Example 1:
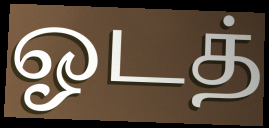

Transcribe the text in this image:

ஓடத்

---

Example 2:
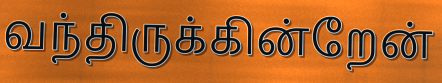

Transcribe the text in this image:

வந்திருக்கின்றேன்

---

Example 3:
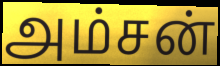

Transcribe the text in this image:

அம்சன்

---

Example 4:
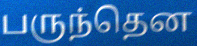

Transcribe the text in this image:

பருந்தென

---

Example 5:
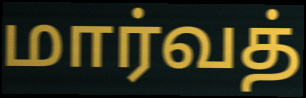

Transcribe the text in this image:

மார்வத்